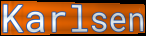
Karlsen